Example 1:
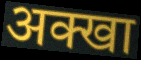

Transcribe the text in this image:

अक्खा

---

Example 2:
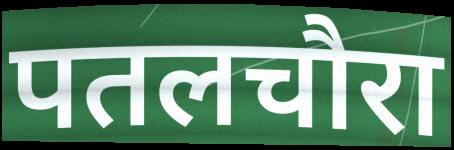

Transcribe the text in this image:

पतलचौरा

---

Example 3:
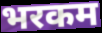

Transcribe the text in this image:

भरकम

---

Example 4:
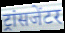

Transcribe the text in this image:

ट्रांसजेंटर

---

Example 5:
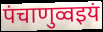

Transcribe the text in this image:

पंचाणुव्वइयं